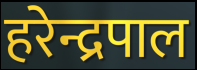
हरेन्द्रपाल